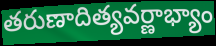
తరుణాదిత్యవర్ణాభ్యాం